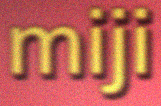
miji